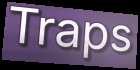
Traps